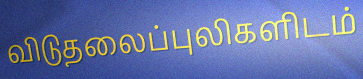
விடுதலைப்புலிகளிடம்